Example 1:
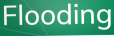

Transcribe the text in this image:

Flooding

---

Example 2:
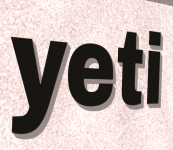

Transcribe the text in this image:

yeti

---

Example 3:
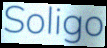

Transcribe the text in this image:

Soligo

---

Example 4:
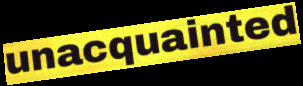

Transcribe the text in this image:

unacquainted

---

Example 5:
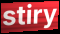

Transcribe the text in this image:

stiry